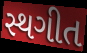
સ્થગીત